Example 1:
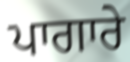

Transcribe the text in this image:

ਪਾਗਾਰੇ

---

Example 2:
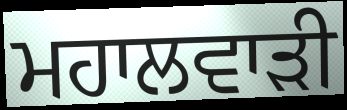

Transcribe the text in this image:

ਮਹਾਲਵਾੜੀ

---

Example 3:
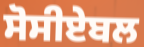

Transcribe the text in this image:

ਸੋਸੀਏਬਲ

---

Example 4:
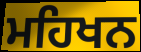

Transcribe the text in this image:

ਮਹਿਖਨ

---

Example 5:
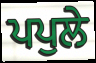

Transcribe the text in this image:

ਪਪੁਲੇ